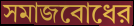
সমাজবোধের